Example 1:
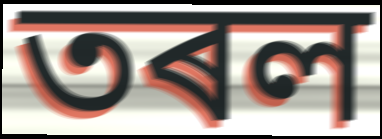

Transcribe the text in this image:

তৰল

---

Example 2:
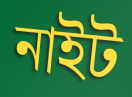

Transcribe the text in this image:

নাইট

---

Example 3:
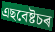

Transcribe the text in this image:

এছবেষ্টচৰ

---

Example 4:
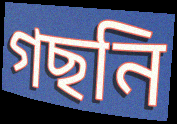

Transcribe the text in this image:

গছনি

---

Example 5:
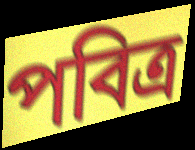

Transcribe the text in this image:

পবিত্ৰ